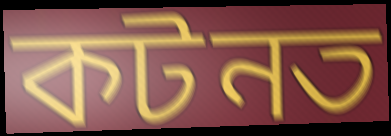
কটনত